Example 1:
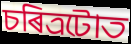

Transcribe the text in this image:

চৰিত্ৰটোত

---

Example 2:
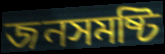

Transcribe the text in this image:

জনসমষ্টি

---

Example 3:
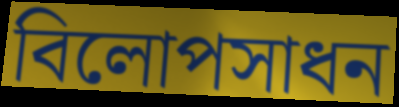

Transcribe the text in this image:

বিলোপসাধন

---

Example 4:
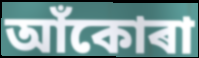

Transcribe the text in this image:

আঁকোৰা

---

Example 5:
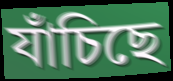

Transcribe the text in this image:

যাঁচিছে